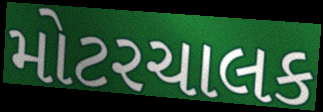
મોટરચાલક